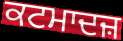
ਕਟਮਾਦਜ਼